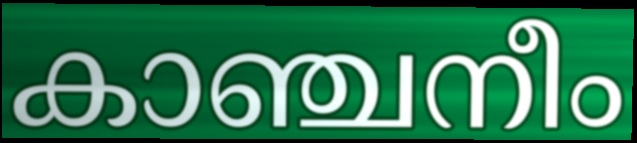
കാഞ്ചനീം